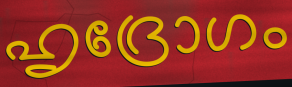
ഹൃദ്രോഗം